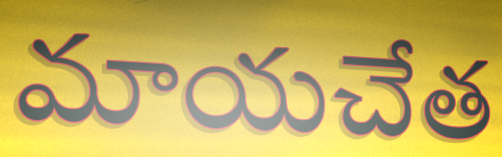
మాయచేత